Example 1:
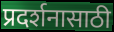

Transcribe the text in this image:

प्रदर्शनासाठी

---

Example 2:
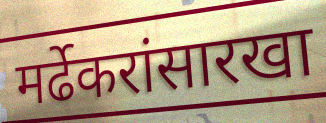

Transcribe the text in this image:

मर्ढेकरांसारखा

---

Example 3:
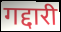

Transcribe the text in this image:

गद्दारी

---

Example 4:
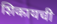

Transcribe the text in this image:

शिकायची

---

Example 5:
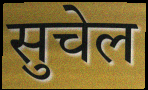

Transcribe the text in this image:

सुचेल